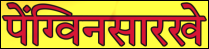
पेंग्विनसारखे